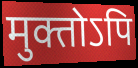
मुक्तोऽपि